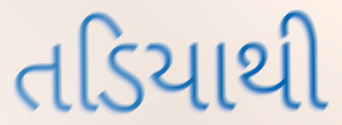
તડિયાથી